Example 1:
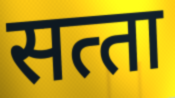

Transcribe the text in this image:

सत्‍ता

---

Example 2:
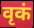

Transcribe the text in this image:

वृकं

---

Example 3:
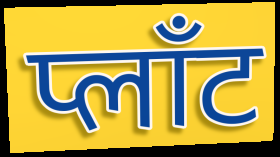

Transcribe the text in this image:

प्लाँट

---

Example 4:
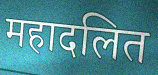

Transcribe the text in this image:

महादलित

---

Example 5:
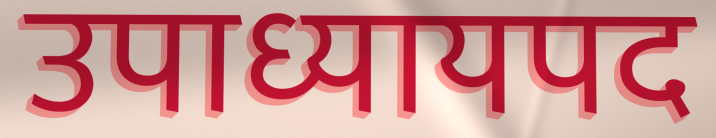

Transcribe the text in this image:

उपाध्यायपद